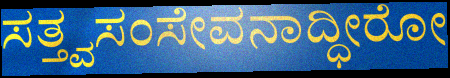
ಸತ್ತ್ವಸಂಸೇವನಾದ್ಧೀರೋ